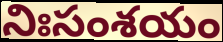
నిఃసంశయం